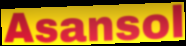
Asansol